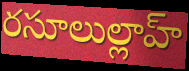
రసూలుల్లాహ్